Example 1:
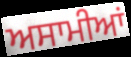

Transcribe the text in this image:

ਅਸਾਮੀਆਂ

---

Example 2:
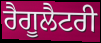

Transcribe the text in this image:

ਰੈਗੂਲੈਟਰੀ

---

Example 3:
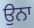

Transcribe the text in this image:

ਉਨਾ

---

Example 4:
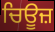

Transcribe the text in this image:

ਚਿਊਜ਼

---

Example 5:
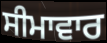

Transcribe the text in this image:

ਸੀਮਾਵਾਰ